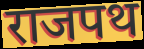
राजपथ